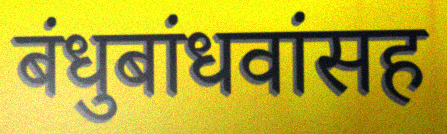
बंधुबांधवांसह